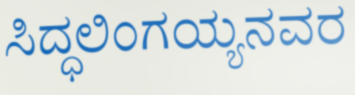
ಸಿದ್ಧಲಿಂಗಯ್ಯನವರ